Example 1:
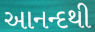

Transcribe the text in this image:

આનન્દથી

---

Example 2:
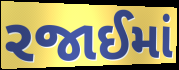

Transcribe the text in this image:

રજાઈમાં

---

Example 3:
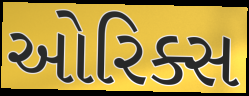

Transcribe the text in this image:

ઓરિક્સ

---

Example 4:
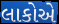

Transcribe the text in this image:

લાકોએ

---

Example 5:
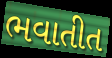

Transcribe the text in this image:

ભવાતીત